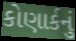
કોણાર્કનું